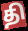
தி